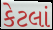
કેટલાં